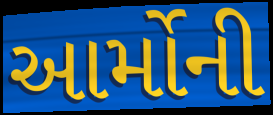
આર્મોની